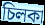
চিলকা